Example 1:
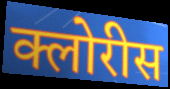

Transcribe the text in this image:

क्लोरीस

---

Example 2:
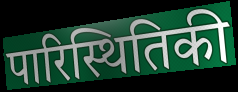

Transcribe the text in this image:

पारिस्थितिकी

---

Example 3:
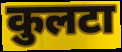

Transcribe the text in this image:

कुलटा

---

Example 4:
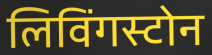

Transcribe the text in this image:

लिविंगस्टोन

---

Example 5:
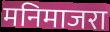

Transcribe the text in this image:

मनिमाजरा